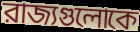
রাজ্যগুলোকে